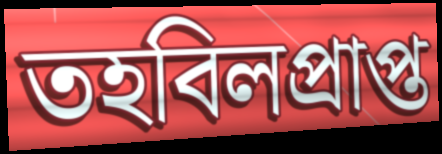
তহবিলপ্রাপ্ত